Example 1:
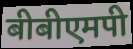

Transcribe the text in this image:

बीबीएमपी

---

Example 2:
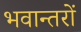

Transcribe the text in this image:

भवान्तरों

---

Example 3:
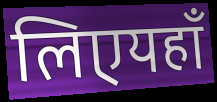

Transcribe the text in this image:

लिएयहाँ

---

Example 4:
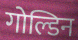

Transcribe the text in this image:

गोल्डिन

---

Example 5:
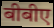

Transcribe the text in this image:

बीबीए